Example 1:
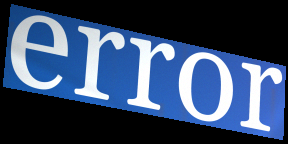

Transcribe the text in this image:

error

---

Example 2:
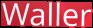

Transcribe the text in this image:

Waller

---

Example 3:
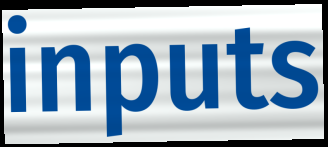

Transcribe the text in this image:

inputs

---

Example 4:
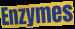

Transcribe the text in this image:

Enzymes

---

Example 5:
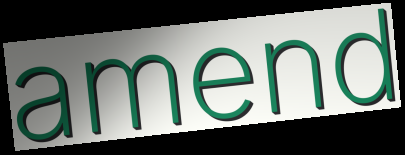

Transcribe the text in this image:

amend